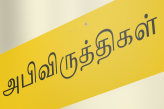
அபிவிருத்திகள்